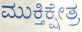
ಮುಕ್ತಿಕ್ಷೇತ್ರ